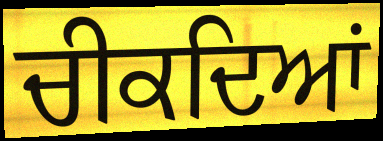
ਚੀਕਦਿਆਂ